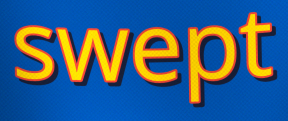
swept